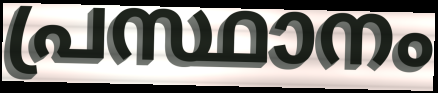
പ്രസ്ഥാനം